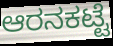
ಆರನಕಟ್ಟೆ